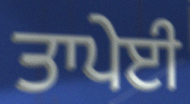
ਤਾਪੇਈ